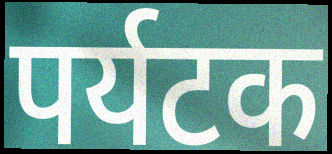
पर्यटक